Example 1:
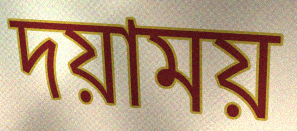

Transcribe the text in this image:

দয়াময়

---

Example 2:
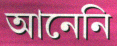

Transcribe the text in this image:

আনেনি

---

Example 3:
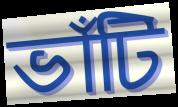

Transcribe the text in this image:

ভাঁটি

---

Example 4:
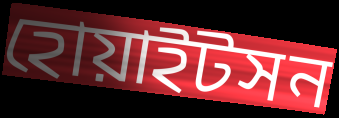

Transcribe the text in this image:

হোয়াইটসন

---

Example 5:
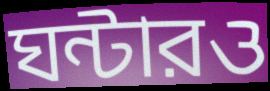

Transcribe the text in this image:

ঘন্টারও